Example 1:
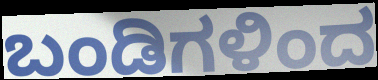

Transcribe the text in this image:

ಬಂಡಿಗಳಿಂದ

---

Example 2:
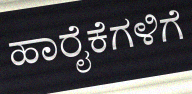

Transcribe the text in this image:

ಹಾರೈಕೆಗಳಿಗೆ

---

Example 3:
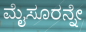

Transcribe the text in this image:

ಮೈಸೂರನ್ನೇ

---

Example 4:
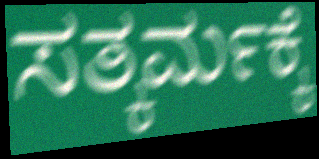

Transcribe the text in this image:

ಸತ್ಕರ್ಮಕ್ಕೆ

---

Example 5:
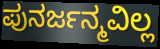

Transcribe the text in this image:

ಪುನರ್ಜನ್ಮವಿಲ್ಲ